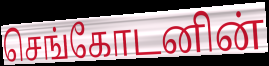
செங்கோடனின்